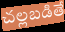
చల్లబడితే